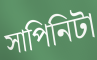
সাপিনিটা